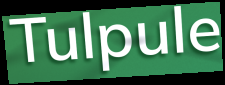
Tulpule